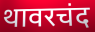
थावरचंद